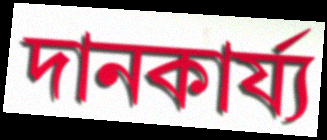
দানকার্য্য